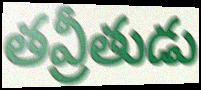
తవ్రీతుడు